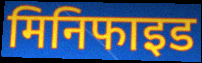
मिनिफाइड